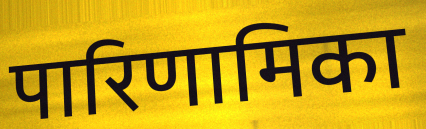
पारिणामिका